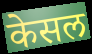
केसल